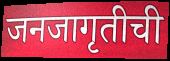
जनजागृतीची